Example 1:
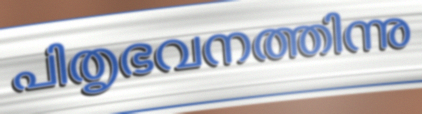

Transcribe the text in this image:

പിതൃഭവനത്തിന്നു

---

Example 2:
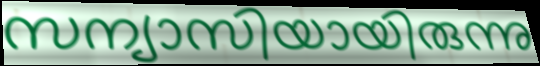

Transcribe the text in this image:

സന്യാസിയായിരുന്നു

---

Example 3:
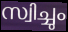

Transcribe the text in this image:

സ്വിച്ചും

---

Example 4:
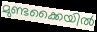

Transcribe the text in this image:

മുണ്ടക്കൈയിൽ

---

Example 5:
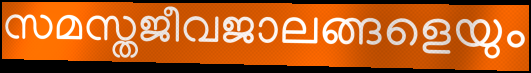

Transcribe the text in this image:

സമസ്തജീവജാലങ്ങളെയും